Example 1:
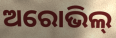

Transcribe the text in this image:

ଅରୋଭିଲ୍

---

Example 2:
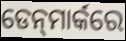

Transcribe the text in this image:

ଡେନ୍‍ମାର୍କରେ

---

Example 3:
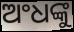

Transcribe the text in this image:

ଅଂଧଙ୍କୁ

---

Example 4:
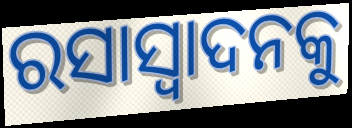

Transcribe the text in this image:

ରସାସ୍ୱାଦନକୁ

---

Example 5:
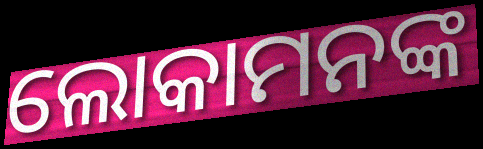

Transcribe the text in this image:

ଲୋକାମନଙ୍କ